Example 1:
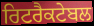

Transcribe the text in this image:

ਰਿਟਰੈਕਟੇਬਲ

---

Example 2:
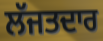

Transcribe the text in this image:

ਲੱਜਤਦਾਰ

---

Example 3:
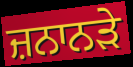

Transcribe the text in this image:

ਜ਼ਨਾਨੜੇ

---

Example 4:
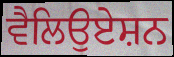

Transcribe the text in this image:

ਵੈਲਿਉਏਸ਼ਨ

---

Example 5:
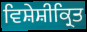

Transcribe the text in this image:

ਵਿਸ਼ੇਸ਼ੀਕ੍ਰਿਤ